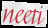
neeti